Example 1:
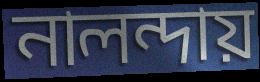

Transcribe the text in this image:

নালন্দায়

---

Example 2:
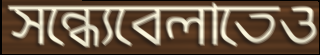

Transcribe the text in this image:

সন্ধ্যেবেলাতেও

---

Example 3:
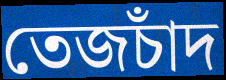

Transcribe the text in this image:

তেজচাঁদ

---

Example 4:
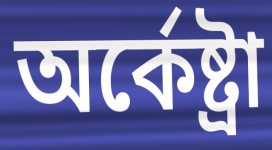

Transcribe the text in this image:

অর্কেষ্ট্রা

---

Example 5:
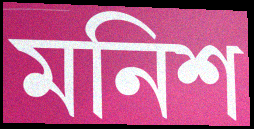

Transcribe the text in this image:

মনিশ